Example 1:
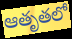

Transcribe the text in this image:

ఆతృతలో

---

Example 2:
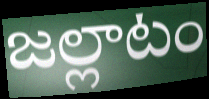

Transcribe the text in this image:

జల్లాటం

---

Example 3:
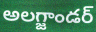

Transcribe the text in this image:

అలగ్జాండర్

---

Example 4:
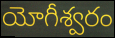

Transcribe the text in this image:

యోగీశ్వరం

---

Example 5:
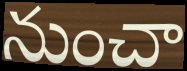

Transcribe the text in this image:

నుంచా